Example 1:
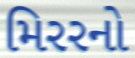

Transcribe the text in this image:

મિરરનો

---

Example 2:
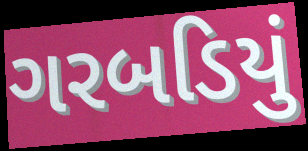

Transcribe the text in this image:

ગરબડિયું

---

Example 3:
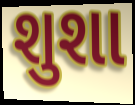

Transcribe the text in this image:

શુશા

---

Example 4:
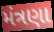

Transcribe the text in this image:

મંત્રણા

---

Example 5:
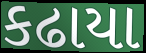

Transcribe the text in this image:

કઢાયા